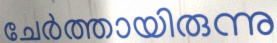
ചേർത്തായിരുന്നു